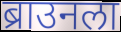
ब्राउनला